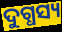
ଦୁଗ୍ଧସ୍ୟ